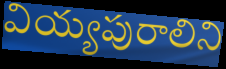
వియ్యపురాలిని